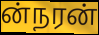
ன்நரன்